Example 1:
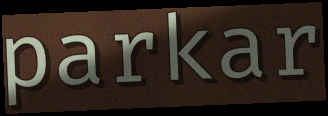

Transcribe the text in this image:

parkar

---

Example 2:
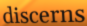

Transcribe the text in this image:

discerns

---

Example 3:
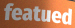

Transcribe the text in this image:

featued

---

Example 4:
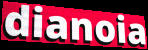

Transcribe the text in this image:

dianoia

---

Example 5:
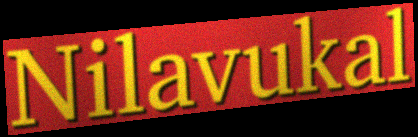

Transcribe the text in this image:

Nilavukal